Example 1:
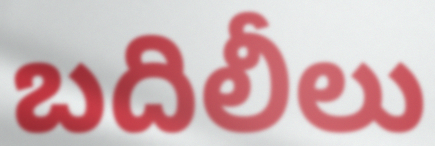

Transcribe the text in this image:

బదిలీలు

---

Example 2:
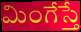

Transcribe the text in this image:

మింగేస్తే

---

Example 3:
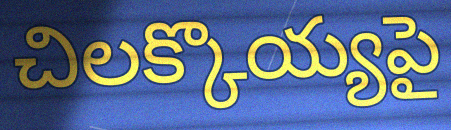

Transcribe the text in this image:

చిలక్కొయ్యపై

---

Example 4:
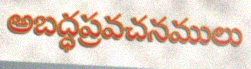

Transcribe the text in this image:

అబద్ధప్రవచనములు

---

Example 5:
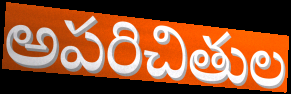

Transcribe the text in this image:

అపరిచితుల